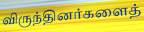
விருந்தினர்களைத்